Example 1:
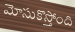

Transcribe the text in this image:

మోసుకొస్తోంది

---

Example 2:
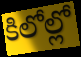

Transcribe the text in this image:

కిలోల్లో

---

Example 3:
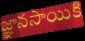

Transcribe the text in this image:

జ్ఞానసాయికి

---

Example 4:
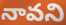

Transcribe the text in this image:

నావని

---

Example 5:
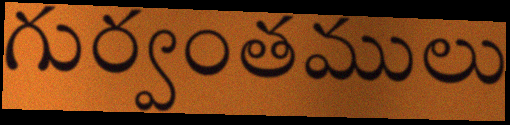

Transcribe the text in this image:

గుర్వంతములు